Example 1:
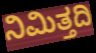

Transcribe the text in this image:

ನಿಮಿತ್ತದಿ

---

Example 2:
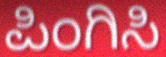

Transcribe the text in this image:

ಪಿಂಗಿಸಿ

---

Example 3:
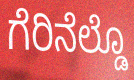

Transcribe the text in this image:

ಗೆರಿನೆಲ್ಡೊ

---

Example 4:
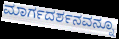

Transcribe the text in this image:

ಮಾರ್ಗದರ್ಶನವನ್ನೂ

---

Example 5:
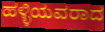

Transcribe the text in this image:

ಹಳ್ಳಿಯವರಾದ